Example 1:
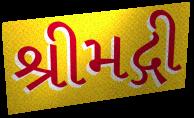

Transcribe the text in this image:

શ્રીમદ્ગી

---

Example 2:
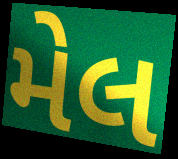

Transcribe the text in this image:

મેલ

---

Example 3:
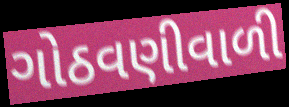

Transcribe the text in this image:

ગોઠવણીવાળી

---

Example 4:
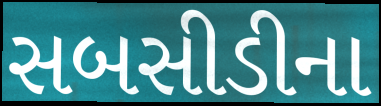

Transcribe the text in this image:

સબસીડીના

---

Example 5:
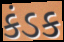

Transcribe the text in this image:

કંડક